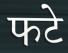
फटे